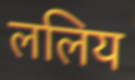
ललिय